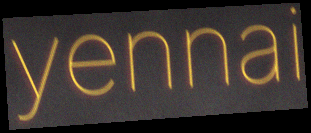
yennai